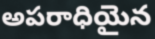
అపరాధియైన